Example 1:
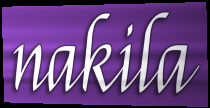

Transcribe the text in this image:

nakila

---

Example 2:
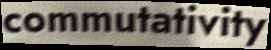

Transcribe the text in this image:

commutativity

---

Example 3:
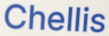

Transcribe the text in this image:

Chellis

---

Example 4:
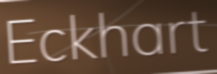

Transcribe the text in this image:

Eckhart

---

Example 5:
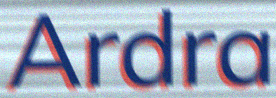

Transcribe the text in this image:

Ardra